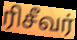
ரிசீவர்